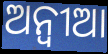
ଅନ୍ବୀଆ